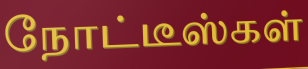
நோட்டீஸ்கள்